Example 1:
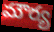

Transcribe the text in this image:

మౌర్య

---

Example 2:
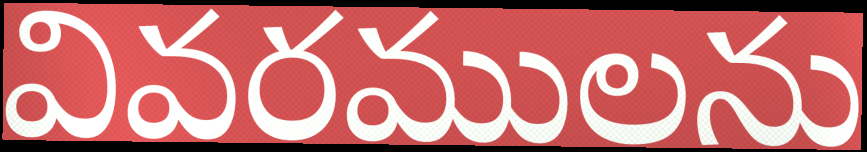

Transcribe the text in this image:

వివరములను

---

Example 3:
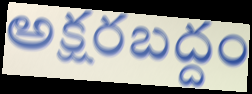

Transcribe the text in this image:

అక్షరబద్దం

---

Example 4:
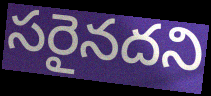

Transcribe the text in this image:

సరైనదని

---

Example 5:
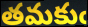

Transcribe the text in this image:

తమకుఁ